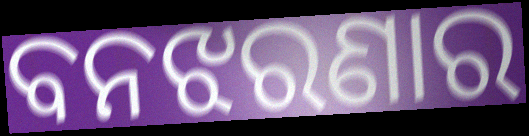
ବନଝରଣାର